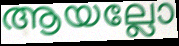
ആയല്ലോ